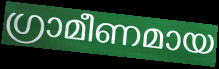
ഗ്രാമീണമായ